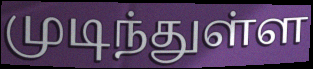
முடிந்துள்ள